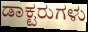
ಡಾಕ್ಟರುಗಳು